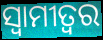
ସ୍ୱାମୀତ୍ୱର